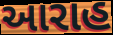
આરાહ